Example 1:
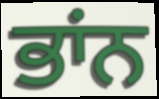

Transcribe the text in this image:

ਭਾਂਨ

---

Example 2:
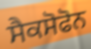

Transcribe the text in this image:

ਸੈਕਸੋਫੋਨ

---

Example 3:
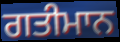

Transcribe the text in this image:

ਗਤੀਮਾਨ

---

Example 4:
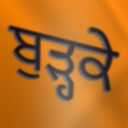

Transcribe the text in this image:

ਬੁੜ੍ਹਕੇ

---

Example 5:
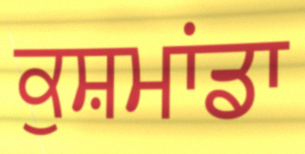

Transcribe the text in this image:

ਕੁਸ਼ਮਾਂਡਾ